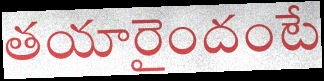
తయారైందంటే